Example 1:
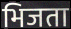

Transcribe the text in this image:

भिजता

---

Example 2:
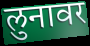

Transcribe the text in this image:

लुनावर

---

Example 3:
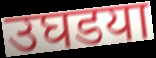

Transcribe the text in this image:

उघडया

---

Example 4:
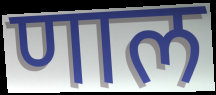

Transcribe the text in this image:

णाल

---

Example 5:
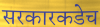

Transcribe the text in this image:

सरकारकडेच